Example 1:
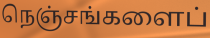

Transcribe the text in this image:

நெஞ்சங்களைப்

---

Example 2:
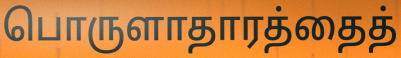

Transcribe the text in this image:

பொருளாதாரத்தைத்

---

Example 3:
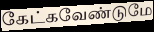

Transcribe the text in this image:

கேட்கவேண்டுமே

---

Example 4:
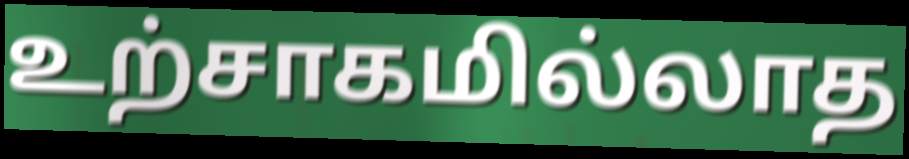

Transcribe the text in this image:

உற்சாகமில்லாத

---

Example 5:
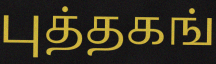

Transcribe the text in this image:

புத்தகங்